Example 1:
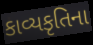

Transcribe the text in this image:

કાવ્યકૃતિના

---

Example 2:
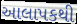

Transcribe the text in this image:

આલાપકથી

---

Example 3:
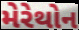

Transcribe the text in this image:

મેરેથોન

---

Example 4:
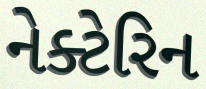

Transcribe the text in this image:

નેક્ટેરિન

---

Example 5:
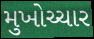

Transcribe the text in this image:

મુખોચ્ચાર